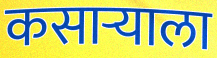
कसाऱ्याला